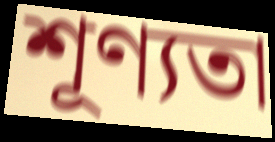
শূণ্যতা